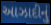
આઝાદીનું